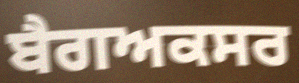
ਬੈਗਅਕਸਰ